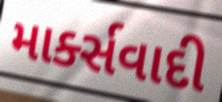
માર્ક્સવાદી